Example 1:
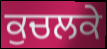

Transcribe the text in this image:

ਕੁਚਲਕੇ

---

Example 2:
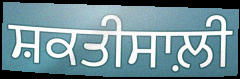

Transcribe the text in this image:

ਸ਼ਕਤੀਸਾਲ਼ੀ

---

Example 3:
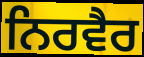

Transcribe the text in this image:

ਨਿਰਵੈਰ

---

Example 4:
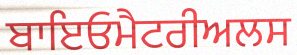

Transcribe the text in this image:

ਬਾਇਓਮੈਟਰੀਅਲਸ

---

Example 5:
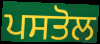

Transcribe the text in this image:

ਪਸਤੋਲ